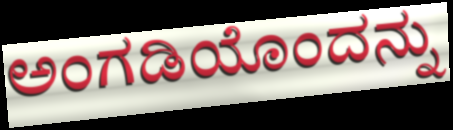
ಅಂಗಡಿಯೊಂದನ್ನು